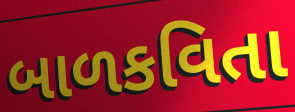
બાળકવિતા